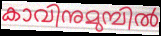
കാവിനുമുമ്പിൽ